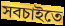
সবচাইতে